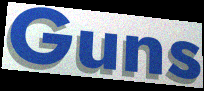
Guns